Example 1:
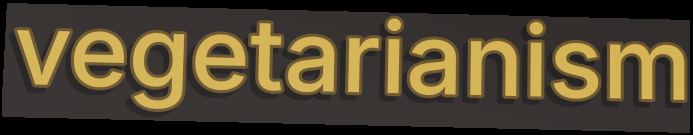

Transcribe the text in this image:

vegetarianism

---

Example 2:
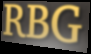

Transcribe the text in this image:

RBG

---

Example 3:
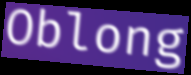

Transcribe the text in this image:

Oblong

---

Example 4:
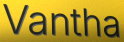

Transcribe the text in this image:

Vantha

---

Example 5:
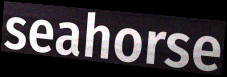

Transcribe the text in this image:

seahorse